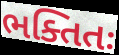
ભક્તિતઃ